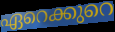
ഏറെക്കുറെ